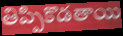
తిప్పికొడతాయి